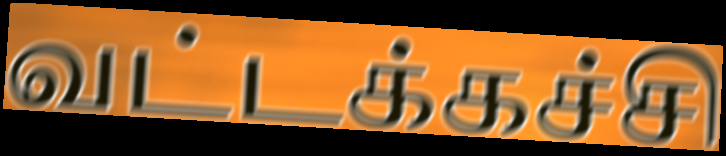
வட்டக்கச்சி